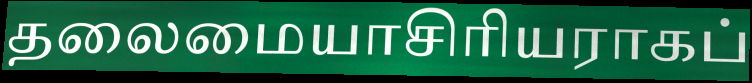
தலைமையாசிரியராகப்